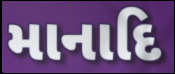
માનાદિ